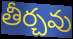
తీర్చవు